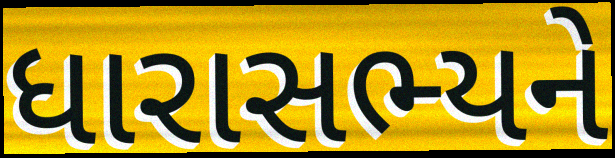
ધારાસભ્યને